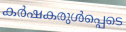
കർഷകരുൾപ്പെടെ